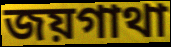
জয়গাথা